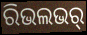
ରିଭଲଭର୍